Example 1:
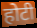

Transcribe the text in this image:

होटी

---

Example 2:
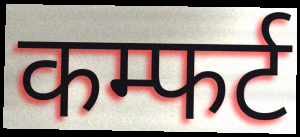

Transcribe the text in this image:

कम्फर्ट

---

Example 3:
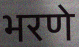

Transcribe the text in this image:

भरणे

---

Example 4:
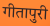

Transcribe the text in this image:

गीतापुरी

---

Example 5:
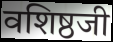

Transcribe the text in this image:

वशिष्ठजी